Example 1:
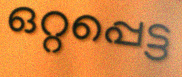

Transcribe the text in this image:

ഒറ്റപ്പെട്ട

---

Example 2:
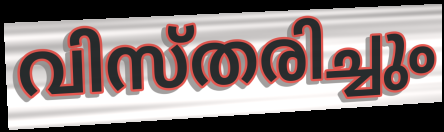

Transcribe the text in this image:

വിസ്തരിച്ചും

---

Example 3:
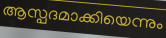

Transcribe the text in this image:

ആസ്പദമാക്കിയെന്നും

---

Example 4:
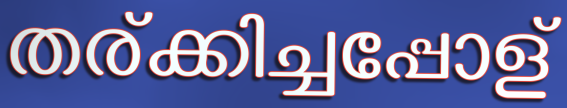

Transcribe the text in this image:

തര്ക്കിച്ചപ്പോള്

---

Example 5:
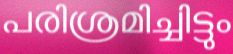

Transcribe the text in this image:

പരിശ്രമിച്ചിട്ടും